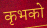
कृभको